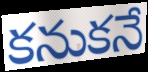
కనుకనే